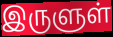
இருளுள்